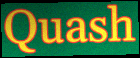
Quash